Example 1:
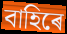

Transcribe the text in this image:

বাহিৰে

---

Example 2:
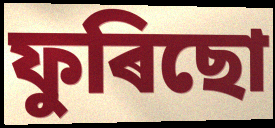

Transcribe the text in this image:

ফুৰিছো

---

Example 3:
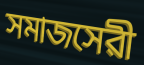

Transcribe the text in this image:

সমাজসেৱী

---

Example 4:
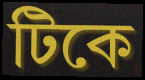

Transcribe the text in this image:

টিকে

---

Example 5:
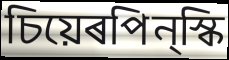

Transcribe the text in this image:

চিয়েৰপিন্‌স্কি